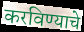
करविण्याचे